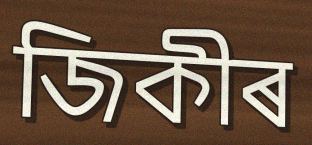
জিকীৰ